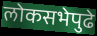
लोकसभेपुढे